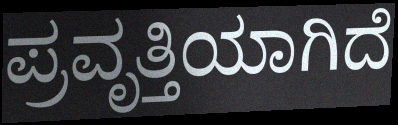
ಪ್ರವೃತ್ತಿಯಾಗಿದೆ